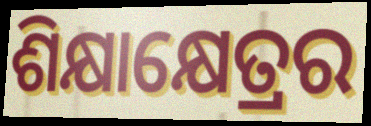
ଶିକ୍ଷାକ୍ଷେତ୍ରର